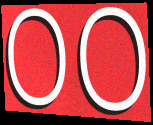
oo